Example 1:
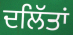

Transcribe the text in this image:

ਦਲਿੱਤਾਂ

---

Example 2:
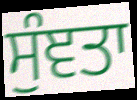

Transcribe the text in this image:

ਸੁੰਞਤਾ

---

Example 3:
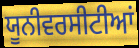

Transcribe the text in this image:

ਯੂਨੀਵਰਸੀਟੀਆਂ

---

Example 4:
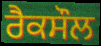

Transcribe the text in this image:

ਰੈਕਸੌਲ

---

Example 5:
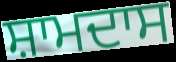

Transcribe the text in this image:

ਸ਼ਾਮਦਾਸ